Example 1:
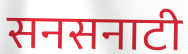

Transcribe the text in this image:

सनसनाटी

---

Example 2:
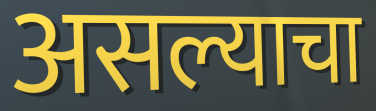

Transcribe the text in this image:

असल्‍याचा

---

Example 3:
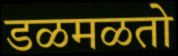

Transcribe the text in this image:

डळमळतो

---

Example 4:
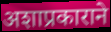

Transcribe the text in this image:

अशाप्रकाराने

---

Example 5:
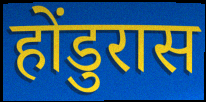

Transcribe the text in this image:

होंडुरास